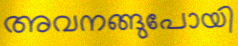
അവനങ്ങുപോയി